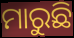
ମାରୁଛି